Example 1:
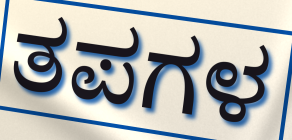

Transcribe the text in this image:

ತಪಗಳ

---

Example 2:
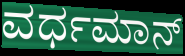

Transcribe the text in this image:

ವರ್ಧಮಾನ್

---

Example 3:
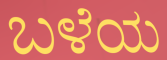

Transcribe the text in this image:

ಬಳೆಯ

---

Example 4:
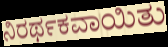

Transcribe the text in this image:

ನಿರರ್ಥಕವಾಯಿತು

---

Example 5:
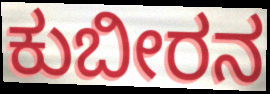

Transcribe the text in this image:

ಕುಬೀರನ